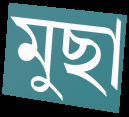
মুছা